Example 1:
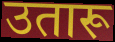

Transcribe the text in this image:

उतारू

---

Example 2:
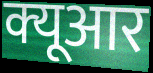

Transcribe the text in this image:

क्‍यूआर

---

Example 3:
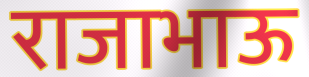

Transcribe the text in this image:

राजाभाऊ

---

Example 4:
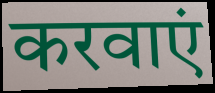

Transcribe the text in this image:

करवाएं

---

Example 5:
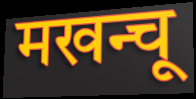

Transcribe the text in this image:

मखन्चू